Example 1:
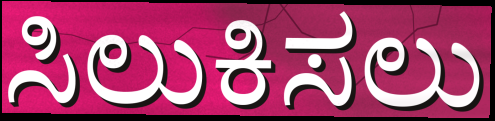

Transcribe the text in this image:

ಸಿಲುಕಿಸಲು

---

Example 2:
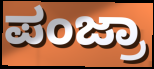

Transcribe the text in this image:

ಪಂಜ್ರಾ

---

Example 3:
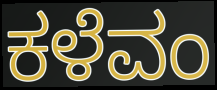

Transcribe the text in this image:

ಕಳೆವಂ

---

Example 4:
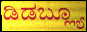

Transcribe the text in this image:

ಡಿಡಬ್ಲ್ಯೂ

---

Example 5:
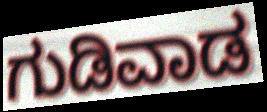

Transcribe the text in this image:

ಗುಡಿವಾಡ